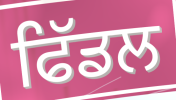
ਫਿੱਡਲ